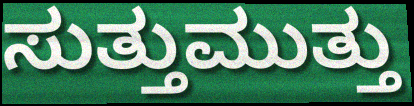
ಸುತ್ತುಮುತ್ತು